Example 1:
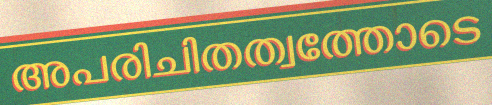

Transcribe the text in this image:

അപരിചിതത്വത്തോടെ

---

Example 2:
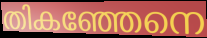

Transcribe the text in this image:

തികഞ്ഞേനെ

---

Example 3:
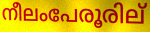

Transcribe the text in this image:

നീലംപേരൂരില്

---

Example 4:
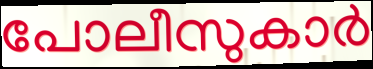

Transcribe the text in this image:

പോലീസുകാർ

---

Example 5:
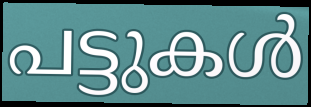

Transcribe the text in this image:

പട്ടുകൾ